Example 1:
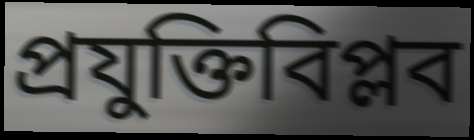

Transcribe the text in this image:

প্রযুক্তিবিপ্লব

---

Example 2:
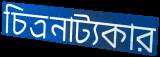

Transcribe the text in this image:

চিত্রনাট্যকার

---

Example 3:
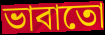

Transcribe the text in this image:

ভাবাতো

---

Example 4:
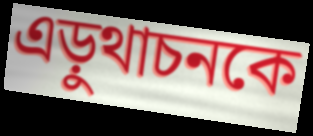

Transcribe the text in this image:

এড়ুথাচনকে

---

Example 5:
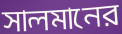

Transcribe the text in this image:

সালমানের